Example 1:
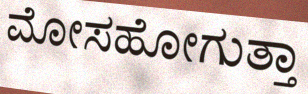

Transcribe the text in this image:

ಮೋಸಹೋಗುತ್ತಾ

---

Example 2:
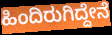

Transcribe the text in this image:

ಹಿಂದಿರುಗಿದ್ದೇನೆ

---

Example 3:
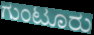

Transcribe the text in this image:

ಗುಂಟೂರು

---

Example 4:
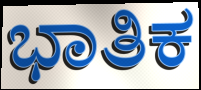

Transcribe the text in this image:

ಭಾತಿಕ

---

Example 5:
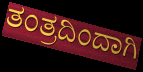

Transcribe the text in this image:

ತಂತ್ರದಿಂದಾಗಿ